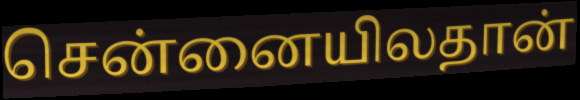
சென்னையிலதான்